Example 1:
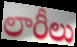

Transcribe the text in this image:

లారీలు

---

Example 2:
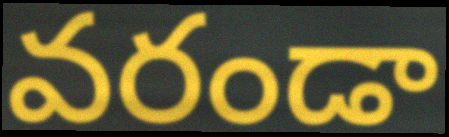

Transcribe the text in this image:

వరండా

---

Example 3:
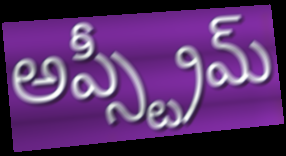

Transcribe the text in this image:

అప్స్ట్రీమ్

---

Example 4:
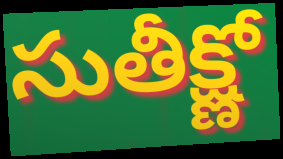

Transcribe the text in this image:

సుతీక్ష్ణో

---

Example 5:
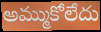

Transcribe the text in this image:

అమ్ముకోలేదు